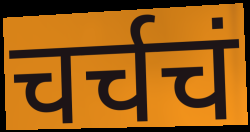
चर्चचं